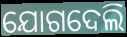
ଯୋଗଦେଲି